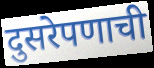
दुसरेपणाची